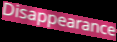
Disappearance